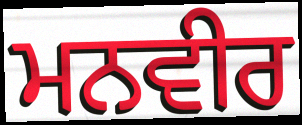
ਮਨਵੀਰ